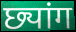
छ्यांग